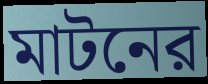
মাটনের